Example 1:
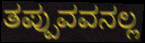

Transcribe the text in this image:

ತಪ್ಪುವವನಲ್ಲ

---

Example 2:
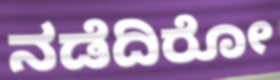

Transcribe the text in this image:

ನಡೆದಿರೋ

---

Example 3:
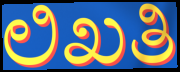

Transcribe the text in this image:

ಲಿಖತಿ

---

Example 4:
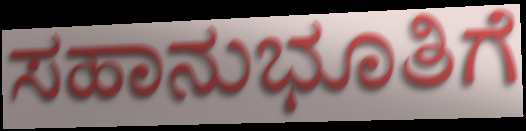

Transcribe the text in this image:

ಸಹಾನುಭೂತಿಗೆ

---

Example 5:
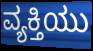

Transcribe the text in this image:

ವ್ಯಕ್ತಿಯು